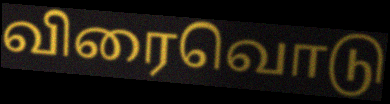
விரைவொடு